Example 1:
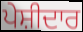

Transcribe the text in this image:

ਪੇਸ਼ੀਦਾਰ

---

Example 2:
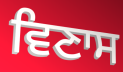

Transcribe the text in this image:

ਵਿਣਾਸ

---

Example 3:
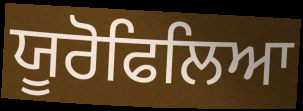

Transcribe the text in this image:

ਯੂਰੋਫਿਲਿਆ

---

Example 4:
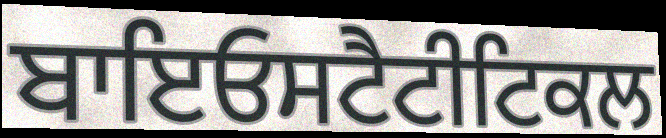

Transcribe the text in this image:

ਬਾਇਓਸਟੈਟੀਟਿਕਲ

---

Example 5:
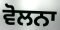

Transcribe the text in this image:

ਵੋਲਨਾ